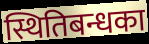
स्थितिबन्धका